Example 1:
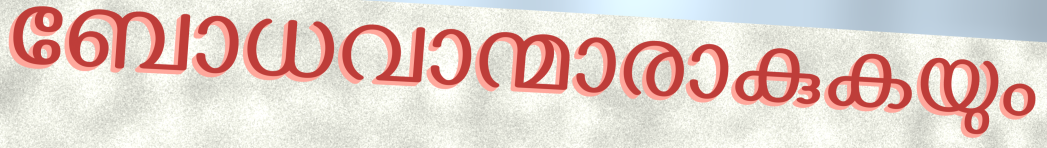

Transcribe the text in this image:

ബോധവാന്മാരാകുകയും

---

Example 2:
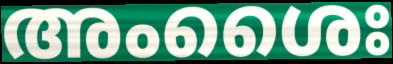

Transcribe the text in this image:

അംശൈഃ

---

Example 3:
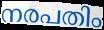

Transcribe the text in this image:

നരപതിം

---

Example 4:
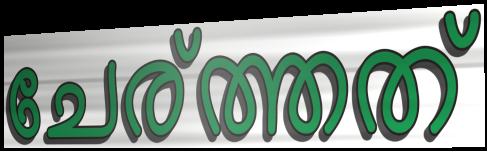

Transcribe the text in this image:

ചേര്ത്തത്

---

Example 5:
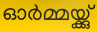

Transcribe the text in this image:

ഓർമ്മയ്ക്കു്